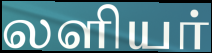
லளியர்